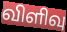
விளிவு